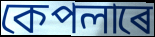
কেপলাৰে